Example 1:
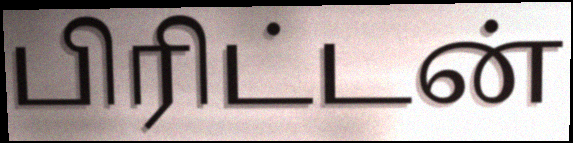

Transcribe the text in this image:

பிரிட்டன்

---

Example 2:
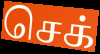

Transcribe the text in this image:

செக்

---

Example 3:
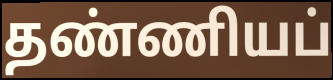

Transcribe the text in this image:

தண்ணியப்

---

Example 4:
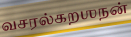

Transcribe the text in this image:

வசரல்கறஶநன்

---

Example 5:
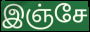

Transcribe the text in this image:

இஞ்சே